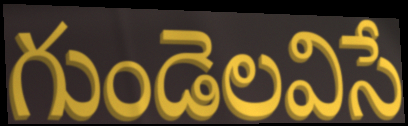
గుండెలవిసే